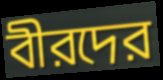
বীরদের